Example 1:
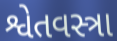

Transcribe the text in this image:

શ્વેતવસ્ત્રા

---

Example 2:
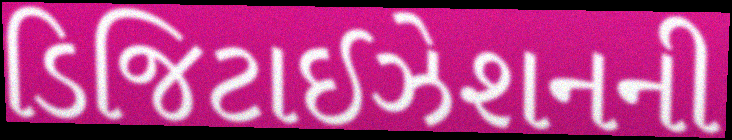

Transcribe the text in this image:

ડિજિટાઈઝેશનની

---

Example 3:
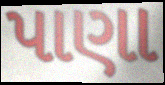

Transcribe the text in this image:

પાણા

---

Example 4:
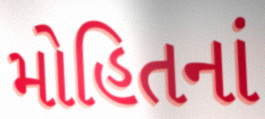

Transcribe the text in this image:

મોહિતનાં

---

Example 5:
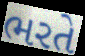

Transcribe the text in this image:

ભરતે